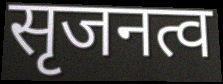
सृजनत्व